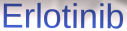
Erlotinib